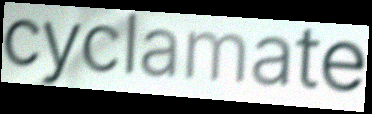
cyclamate